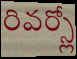
రివర్స్లో